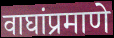
वाघांप्रमाणे